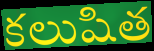
కలుషిత